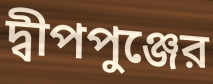
দ্বীপপুঞ্জের